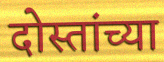
दोस्तांच्या